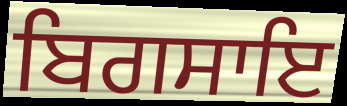
ਬਿਗਸਾਇ